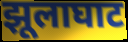
झूलाघाट